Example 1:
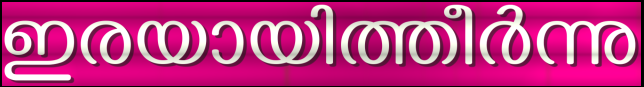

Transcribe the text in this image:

ഇരയായിത്തീർന്നു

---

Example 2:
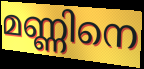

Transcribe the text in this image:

മണ്ണിനെ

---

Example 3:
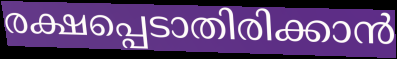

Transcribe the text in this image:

രക്ഷപ്പെടാതിരിക്കാൻ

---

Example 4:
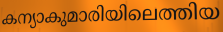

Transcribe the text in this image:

കന്യാകുമാരിയിലെത്തിയ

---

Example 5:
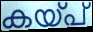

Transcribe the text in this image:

കയ്പ്